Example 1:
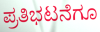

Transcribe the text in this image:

ಪ್ರತಿಭಟನೆಗೂ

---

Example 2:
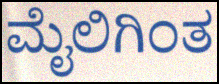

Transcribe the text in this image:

ಮೈಲಿಗಿಂತ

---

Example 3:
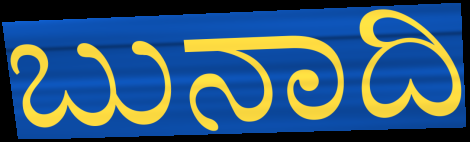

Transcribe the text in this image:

ಬುನಾದಿ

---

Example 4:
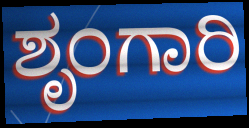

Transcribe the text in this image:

ಶೃಂಗಾರಿ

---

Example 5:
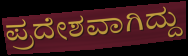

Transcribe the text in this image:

ಪ್ರದೇಶವಾಗಿದ್ದು